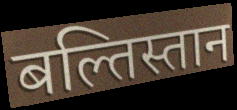
बल्तिस्तान